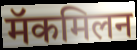
मॅकमिलन